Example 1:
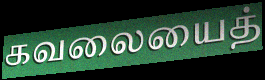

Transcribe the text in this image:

கவலையைத்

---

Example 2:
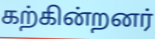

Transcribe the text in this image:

கற்கின்றனர்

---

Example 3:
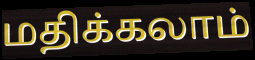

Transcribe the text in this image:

மதிக்கலாம்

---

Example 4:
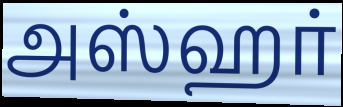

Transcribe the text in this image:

அஸ்ஹர்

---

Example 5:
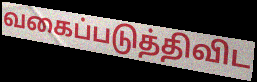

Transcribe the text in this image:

வகைப்படுத்திவிட